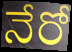
నేరో